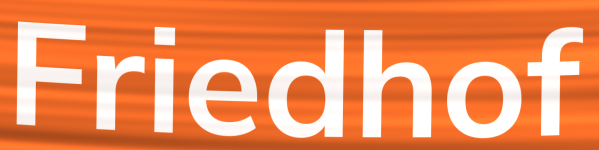
Friedhof